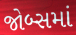
જોબ્સમાં